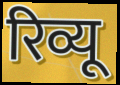
रिव्यू